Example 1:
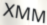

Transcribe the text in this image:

XMM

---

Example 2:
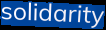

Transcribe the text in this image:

solidarity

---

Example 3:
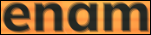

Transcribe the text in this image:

enam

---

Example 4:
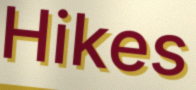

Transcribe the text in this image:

Hikes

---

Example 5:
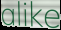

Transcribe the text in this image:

alike